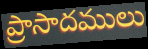
ప్రాసాదములు